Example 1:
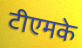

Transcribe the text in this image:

टीएमके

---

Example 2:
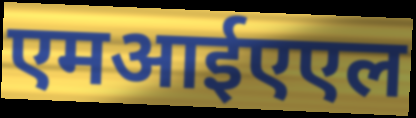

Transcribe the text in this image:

एमआईएएल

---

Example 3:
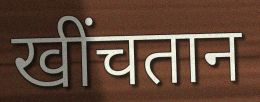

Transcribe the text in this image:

खींचतान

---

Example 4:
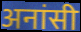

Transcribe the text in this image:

अनांसी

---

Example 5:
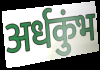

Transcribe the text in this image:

अर्धकुंभ